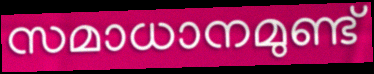
സമാധാനമുണ്ട്